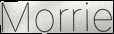
Morrie